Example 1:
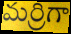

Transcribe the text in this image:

మర్రిగా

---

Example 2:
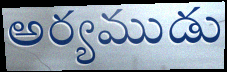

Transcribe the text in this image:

అర్యముడు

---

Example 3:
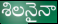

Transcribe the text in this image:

శిలనైనా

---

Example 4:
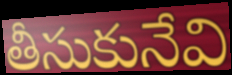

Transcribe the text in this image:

తీసుకునేవి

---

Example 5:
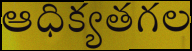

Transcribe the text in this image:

ఆధిక్యతగల